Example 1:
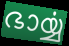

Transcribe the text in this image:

ഭാൎയ്യ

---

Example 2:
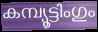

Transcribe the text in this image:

കമ്പ്യൂട്ടിംഗും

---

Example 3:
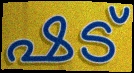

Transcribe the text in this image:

ഷട്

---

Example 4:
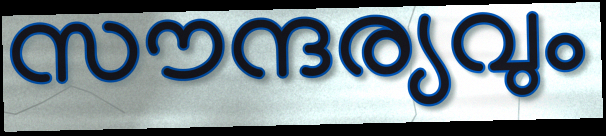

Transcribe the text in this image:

സൗന്ദര്യവും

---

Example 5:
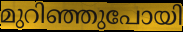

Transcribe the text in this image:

മുറിഞ്ഞുപോയി